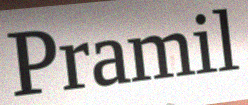
Pramil